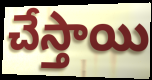
చేస్తాయి